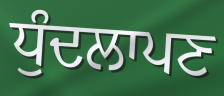
ਧੁੰਦਲਾਪਣ